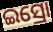
ଇସ୍ରୋ